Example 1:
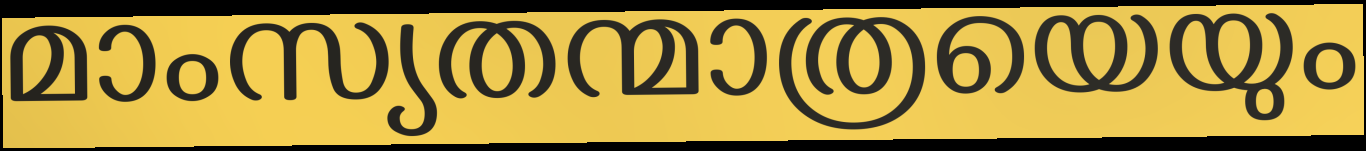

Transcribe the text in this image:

മാംസ്യതന്മാത്രയെയും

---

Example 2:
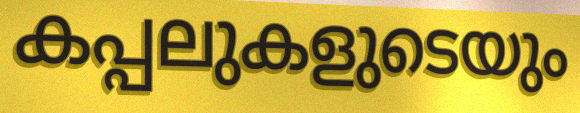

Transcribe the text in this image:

കപ്പലുകളുടെയും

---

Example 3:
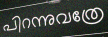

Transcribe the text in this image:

പിറന്നുവത്രേ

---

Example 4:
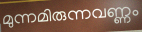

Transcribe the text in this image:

മുന്നമിരുന്നവണ്ണം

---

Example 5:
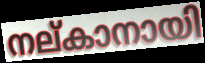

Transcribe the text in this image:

നല്കാനായി